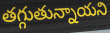
తగ్గుతున్నాయని